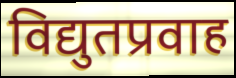
विद्युतप्रवाह